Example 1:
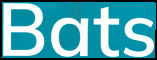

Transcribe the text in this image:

Bats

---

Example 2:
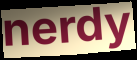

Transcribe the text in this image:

nerdy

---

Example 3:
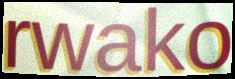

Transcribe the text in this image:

rwako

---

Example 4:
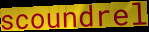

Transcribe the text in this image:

scoundrel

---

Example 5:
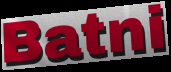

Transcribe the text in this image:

Batni